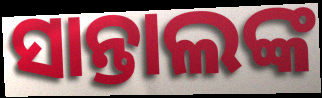
ସାନ୍ତାଲଙ୍କ